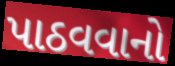
પાઠવવાનો